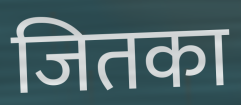
जितका